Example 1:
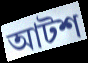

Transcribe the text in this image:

আটশ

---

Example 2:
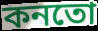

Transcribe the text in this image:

কনতো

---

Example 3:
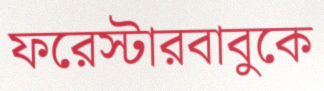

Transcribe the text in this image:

ফরেস্টারবাবুকে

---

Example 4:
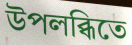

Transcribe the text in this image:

উপলব্ধিতে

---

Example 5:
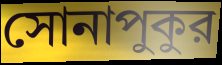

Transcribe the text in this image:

সোনাপুকুর